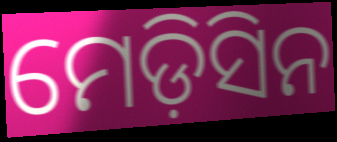
ମେଡ଼ିସିନ